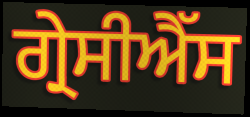
ਗ੍ਰੇਸੀਐੱਸ